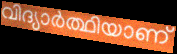
വിദ്യാർത്ഥിയാണ്